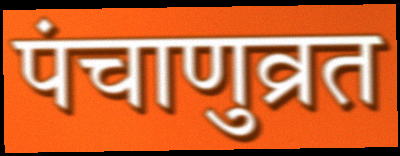
पंचाणुव्रत